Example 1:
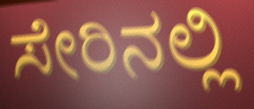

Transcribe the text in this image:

ಸೇರಿನಲ್ಲಿ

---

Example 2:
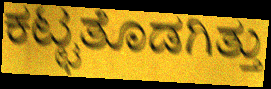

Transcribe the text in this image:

ಕಟ್ಟತೊಡಗಿತ್ತು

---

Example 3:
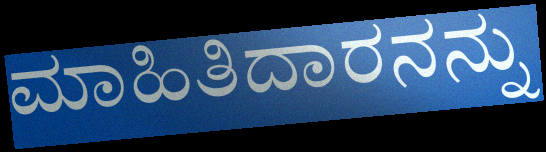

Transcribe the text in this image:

ಮಾಹಿತಿದಾರನನ್ನು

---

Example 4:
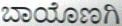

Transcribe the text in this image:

ಬಾಯೊಣಗಿ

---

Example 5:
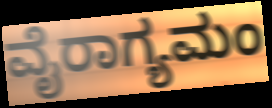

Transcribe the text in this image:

ವೈರಾಗ್ಯಮಂ